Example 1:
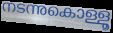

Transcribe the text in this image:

നടന്നുകൊള്ളൂ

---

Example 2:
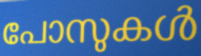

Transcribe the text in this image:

പോസുകൾ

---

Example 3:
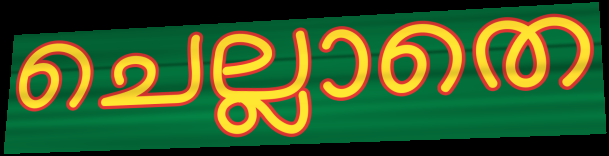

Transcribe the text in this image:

ചെല്ലാതെ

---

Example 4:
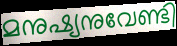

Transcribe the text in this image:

മനുഷ്യനുവേണ്ടി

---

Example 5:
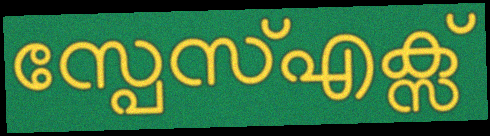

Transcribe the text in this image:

സ്പേസ്എക്സ്